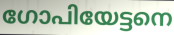
ഗോപിയേട്ടനെ